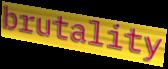
brutality